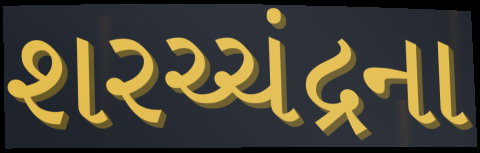
શરચ્ચંદ્રના